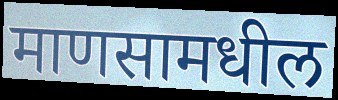
माणसामधील